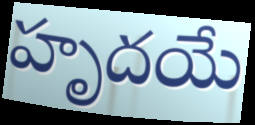
హృదయే